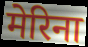
मेरिना